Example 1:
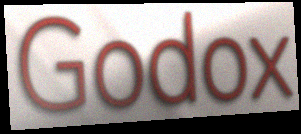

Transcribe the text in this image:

Godox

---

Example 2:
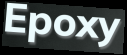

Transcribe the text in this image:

Epoxy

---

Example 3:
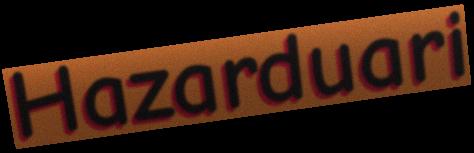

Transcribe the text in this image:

Hazarduari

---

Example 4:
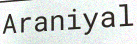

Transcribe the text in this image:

Araniyal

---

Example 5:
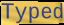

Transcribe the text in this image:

Typed